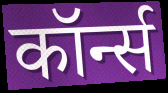
कॉर्न्स